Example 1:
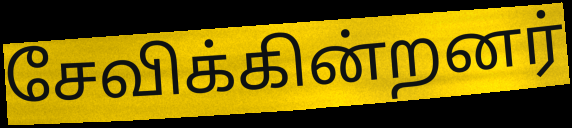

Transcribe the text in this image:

சேவிக்கின்றனர்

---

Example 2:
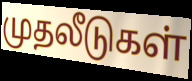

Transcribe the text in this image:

முதலீடுகள்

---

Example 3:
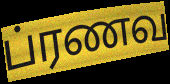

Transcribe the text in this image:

ப்ரணவ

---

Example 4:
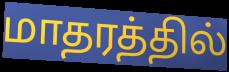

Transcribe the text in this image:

மாதரத்தில்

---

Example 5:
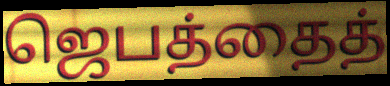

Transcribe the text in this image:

ஜெபத்தைத்